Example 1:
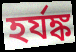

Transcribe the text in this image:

হর্যঙ্ক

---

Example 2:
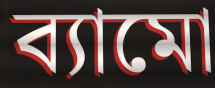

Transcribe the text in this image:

ব্যামো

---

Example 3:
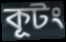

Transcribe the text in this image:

কূটং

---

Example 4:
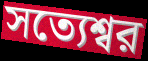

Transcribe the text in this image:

সত্যেশ্বর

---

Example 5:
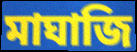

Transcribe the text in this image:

মাঘাজি